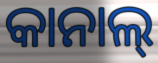
କାନାଲ୍